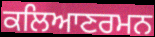
ਕਲਿਆਣਰਮਨ